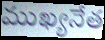
ముఖ్యనేత